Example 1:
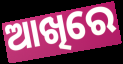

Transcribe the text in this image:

ଆଖିରେ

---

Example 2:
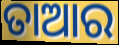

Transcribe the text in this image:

ତାଆର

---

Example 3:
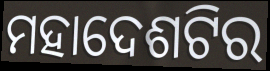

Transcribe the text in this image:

ମହାଦେଶଟିର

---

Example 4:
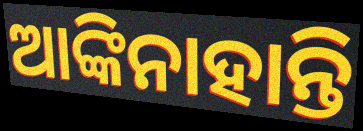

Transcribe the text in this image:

ଆଙ୍କିନାହାନ୍ତି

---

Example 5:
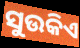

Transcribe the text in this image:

ସୁଉକିଏ